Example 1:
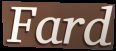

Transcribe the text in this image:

Fard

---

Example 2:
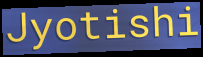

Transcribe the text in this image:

Jyotishi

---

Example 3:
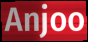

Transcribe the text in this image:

Anjoo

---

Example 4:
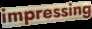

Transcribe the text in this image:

impressing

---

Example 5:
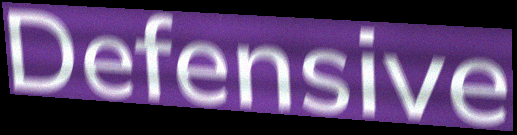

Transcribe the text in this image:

Defensive